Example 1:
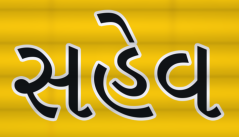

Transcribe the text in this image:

સહેવ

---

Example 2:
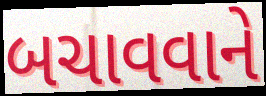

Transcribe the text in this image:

બચાવવાને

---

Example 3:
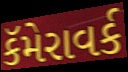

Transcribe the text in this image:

કૅમેરાવર્ક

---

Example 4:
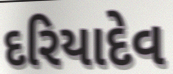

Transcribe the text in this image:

દરિયાદેવ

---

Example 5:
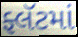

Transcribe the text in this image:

ફ્લૅટમાં